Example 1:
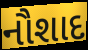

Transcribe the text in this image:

નૌશાદ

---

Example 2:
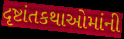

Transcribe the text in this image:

દૃષ્ટાંતકથાઓમાંની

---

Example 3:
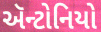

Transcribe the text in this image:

ઍન્ટોનિયો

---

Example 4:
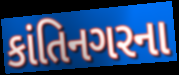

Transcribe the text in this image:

કાંતિનગરના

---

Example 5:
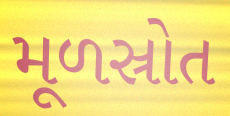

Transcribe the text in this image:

મૂળસ્રોત